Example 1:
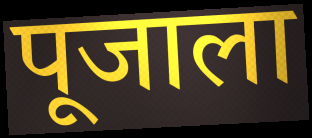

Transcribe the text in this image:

पूजाला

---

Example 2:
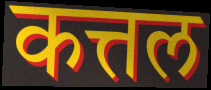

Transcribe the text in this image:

कत्तल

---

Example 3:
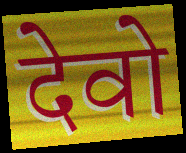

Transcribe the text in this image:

देवो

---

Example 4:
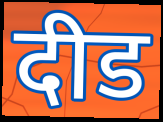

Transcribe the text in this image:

दीड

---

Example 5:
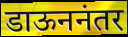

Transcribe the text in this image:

डाऊननंतर